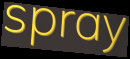
spray